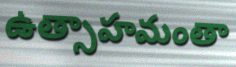
ఉత్సాహమంతా